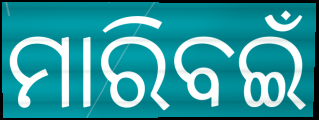
ମାରିବଇଁ